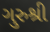
ગુરુશ્રી